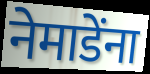
नेमाडेंना